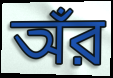
অঁর